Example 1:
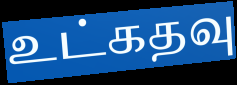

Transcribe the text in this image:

உட்கதவு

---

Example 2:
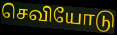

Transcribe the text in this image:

செவியோடு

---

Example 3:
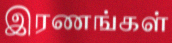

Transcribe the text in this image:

இரணங்கள்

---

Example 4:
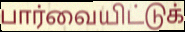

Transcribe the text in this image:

பார்வையிட்டுக்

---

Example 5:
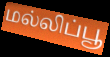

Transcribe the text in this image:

மல்லிப்பூ